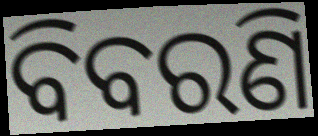
ବିବରଣି